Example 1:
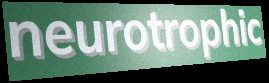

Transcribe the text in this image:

neurotrophic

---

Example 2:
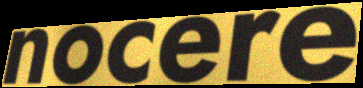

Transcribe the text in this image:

nocere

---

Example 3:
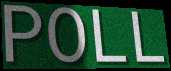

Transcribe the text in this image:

POLL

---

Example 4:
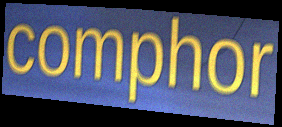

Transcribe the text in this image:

comphor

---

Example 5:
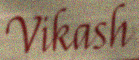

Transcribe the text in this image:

Vikash